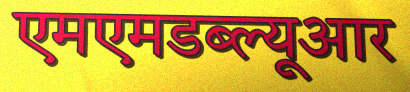
एमएमडब्ल्यूआर